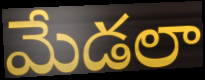
మేడలా